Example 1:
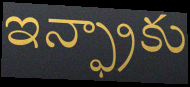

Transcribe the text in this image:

ఇన్ఫ్రాకు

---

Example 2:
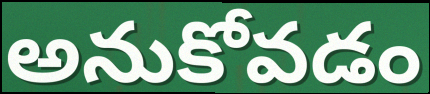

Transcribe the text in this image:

అనుకోవడం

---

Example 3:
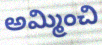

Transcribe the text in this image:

అమ్మించి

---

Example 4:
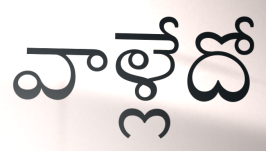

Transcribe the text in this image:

వాళ్లేదో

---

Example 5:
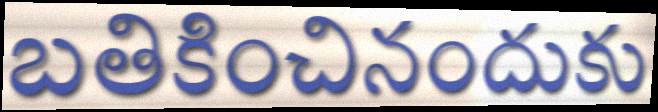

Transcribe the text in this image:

బతికించినందుకు